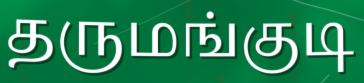
தருமங்குடி